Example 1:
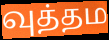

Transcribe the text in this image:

வுத்தம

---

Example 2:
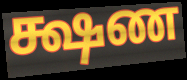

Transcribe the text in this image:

க்ஷண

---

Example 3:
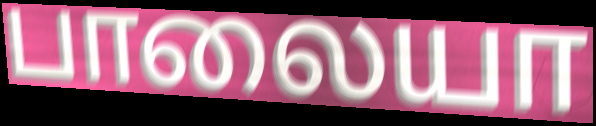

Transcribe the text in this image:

பாலையா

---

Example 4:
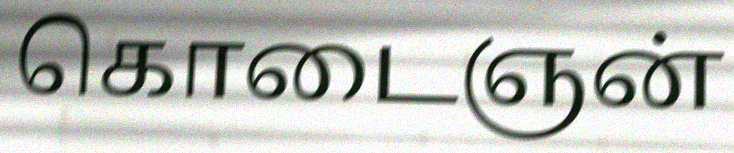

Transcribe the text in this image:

கொடைஞன்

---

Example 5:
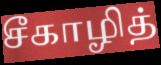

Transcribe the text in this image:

சீகாழித்